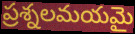
ప్రశ్నలమయమై